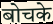
बोचके